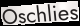
Oschlies